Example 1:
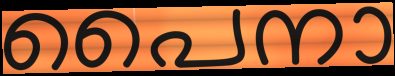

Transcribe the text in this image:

പൈനാ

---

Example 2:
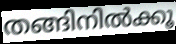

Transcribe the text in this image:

തങ്ങിനിൽക്കൂ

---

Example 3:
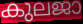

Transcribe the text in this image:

കുലജാ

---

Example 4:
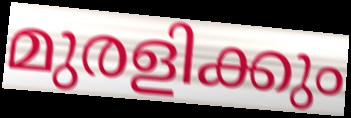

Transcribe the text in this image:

മുരളിക്കും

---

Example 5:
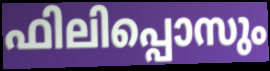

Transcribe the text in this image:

ഫിലിപ്പൊസും